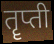
तॄप्ती